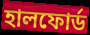
হালফোর্ড